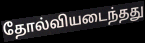
தோல்வியடைந்தது